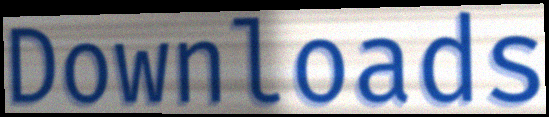
Downloads